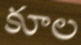
కూల